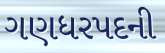
ગણધરપદની